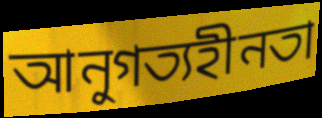
আনুগত্যহীনতা